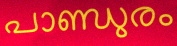
പാണ്ഡുരം